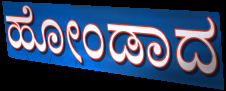
ಹೋಂಡಾದ